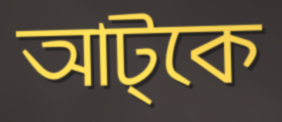
আট্‌কে